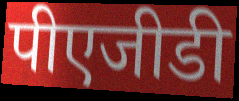
पीएजीडी